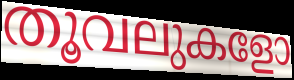
തൂവലുകളോ